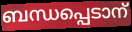
ബന്ധപ്പെടാന്